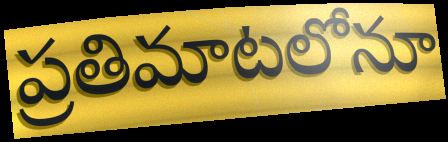
ప్రతిమాటలోనూ